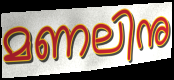
മണലിനു